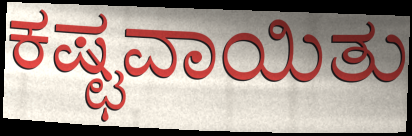
ಕಷ್ಟವಾಯಿತು